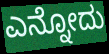
ಎನ್ನೋದು